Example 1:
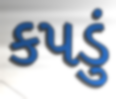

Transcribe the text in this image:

કપડું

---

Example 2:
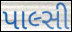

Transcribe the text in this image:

પાલ્સી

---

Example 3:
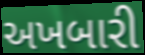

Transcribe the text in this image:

અખબારી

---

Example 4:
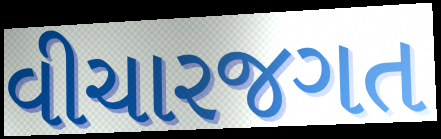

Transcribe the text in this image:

વીચારજગત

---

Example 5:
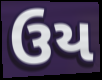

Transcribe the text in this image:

ઉય